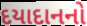
દયાદાનનો